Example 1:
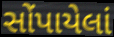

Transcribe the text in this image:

સોંપાયેલાં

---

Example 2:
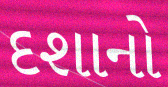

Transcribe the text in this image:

દશાનો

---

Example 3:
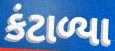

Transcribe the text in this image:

કંટાળ્યા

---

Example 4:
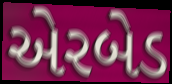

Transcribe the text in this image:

એરબેડ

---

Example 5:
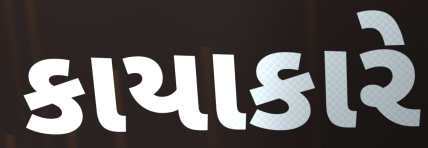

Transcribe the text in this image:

કાયાકારે